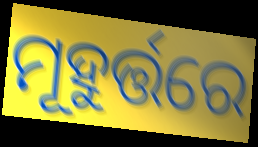
ମୂହୁର୍ତ୍ତରେ